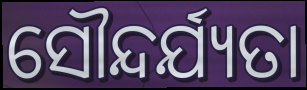
ସୌନ୍ଦର୍ଯ୍ୟତା